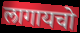
लागायचो